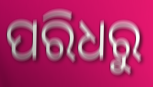
ପରିଧରୁ